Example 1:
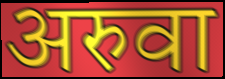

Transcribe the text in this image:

अरुवा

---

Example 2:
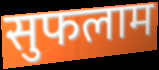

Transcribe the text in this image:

सुफलाम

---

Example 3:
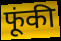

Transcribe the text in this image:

फूंकी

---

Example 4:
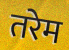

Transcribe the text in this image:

तरेम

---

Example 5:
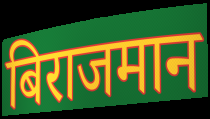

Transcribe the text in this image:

बिराजमान